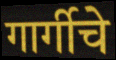
गार्गीचे